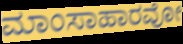
ಮಾಂಸಾಹಾರವೋ